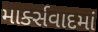
માર્ક્સવાદમાં